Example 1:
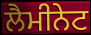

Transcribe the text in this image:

ਲੈਮੀਨੇਟ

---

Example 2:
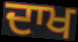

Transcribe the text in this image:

ਦਾਖ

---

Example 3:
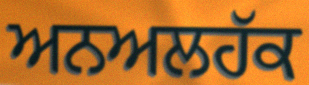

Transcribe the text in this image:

ਅਨਅਲਹੱਕ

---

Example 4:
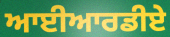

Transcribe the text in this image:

ਆਈਆਰਡੀਏ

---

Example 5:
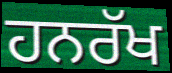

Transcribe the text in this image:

ਹਨਰੱਖ